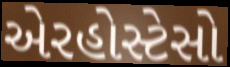
એરહોસ્ટેસો